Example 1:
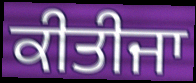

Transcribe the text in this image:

ਕੀਤੀਜਾ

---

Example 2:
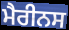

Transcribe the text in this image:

ਮੈਰੀਨਸ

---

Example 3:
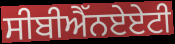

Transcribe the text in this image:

ਸੀਬੀਐੱਨਏਏਟੀ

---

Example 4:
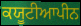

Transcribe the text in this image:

ਕਯੂਟੀਆਪੀਨ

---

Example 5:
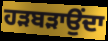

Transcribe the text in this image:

ਹੜਬੜਾਉਂਦਾ